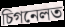
চিগনেলত